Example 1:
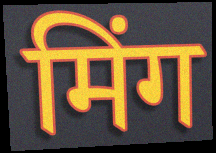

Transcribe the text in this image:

मिंग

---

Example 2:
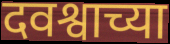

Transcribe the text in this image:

दवश्वाच्या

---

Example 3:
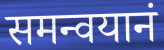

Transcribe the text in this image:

समन्वयानं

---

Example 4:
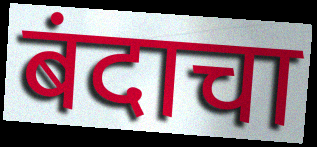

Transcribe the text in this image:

बंदाचा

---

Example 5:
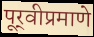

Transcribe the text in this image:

पूर्वीप्रमाणे